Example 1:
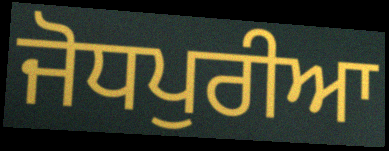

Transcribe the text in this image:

ਜੋਧਪੁਰੀਆ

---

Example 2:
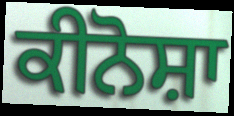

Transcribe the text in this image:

ਕੀਨੋਸ਼ਾ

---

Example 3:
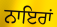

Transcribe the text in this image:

ਨਾਇਰਾਂ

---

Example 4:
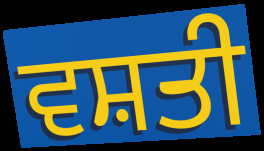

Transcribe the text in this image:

ਵਸ਼ਤੀ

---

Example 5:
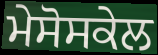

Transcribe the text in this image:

ਮੇਸੋਸਕੇਲ